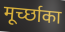
मूर्च्छाका